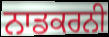
ਨਾਡਕਰਨੀ